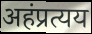
अहंप्रत्यय